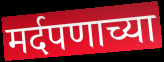
मर्दपणाच्या